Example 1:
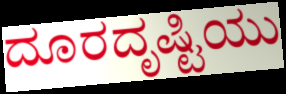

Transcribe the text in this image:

ದೂರದೃಷ್ಟಿಯು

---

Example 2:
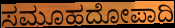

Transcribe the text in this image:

ಸಮೂಹದೋಪಾದಿ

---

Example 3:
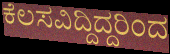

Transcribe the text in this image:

ಕೆಲಸವಿದ್ದಿದ್ದರಿಂದ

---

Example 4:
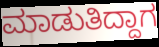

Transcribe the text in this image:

ಮಾಡುತಿದ್ದಾಗ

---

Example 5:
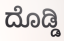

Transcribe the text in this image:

ದೊಡ್ಡಿ